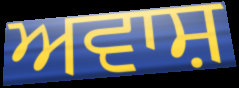
ਅਵਾਸ਼